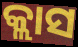
କ୍ଲାସ